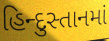
હિન્દુસ્તાનમાં